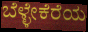
ಬೆಳ್ಳೇಕೆರೆಯ